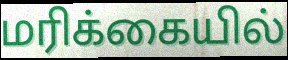
மரிக்கையில்